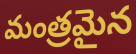
మంత్రమైన